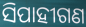
ସିପାହୀଗଣ